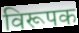
विरूपक